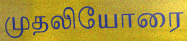
முதலியோரை